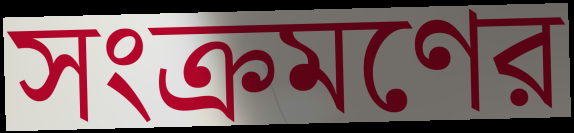
সংক্রমণের